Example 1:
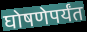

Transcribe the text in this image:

घोषणेपर्यंत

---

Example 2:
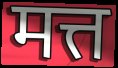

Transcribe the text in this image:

मत्त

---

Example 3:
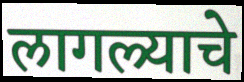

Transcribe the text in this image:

लागल्याचे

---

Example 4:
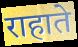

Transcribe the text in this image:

राहाते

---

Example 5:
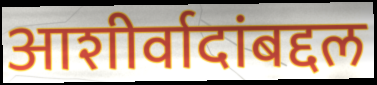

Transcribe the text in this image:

आशीर्वादांबद्दल